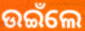
ଉଇଁଲେ